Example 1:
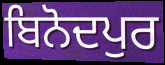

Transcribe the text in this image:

ਬਿਨੋਦਪੁਰ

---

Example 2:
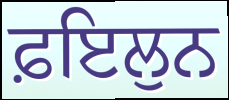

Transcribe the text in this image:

ਫ਼ਇਲੁਨ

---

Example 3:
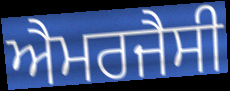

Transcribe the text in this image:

ਐਮਰਜੈਸੀ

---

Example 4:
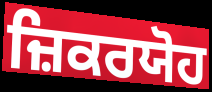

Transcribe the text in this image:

ਜ਼ਿਕਰਯੋਹ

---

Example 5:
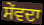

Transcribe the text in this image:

ਸੇਂਵਦਾ